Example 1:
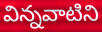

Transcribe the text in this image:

విన్నవాటిని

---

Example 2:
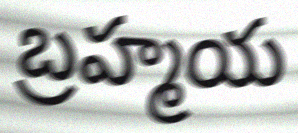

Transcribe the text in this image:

బ్రహ్మయ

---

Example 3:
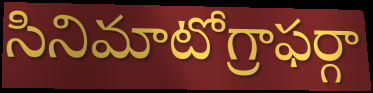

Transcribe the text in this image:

సినిమాటోగ్రాఫర్గా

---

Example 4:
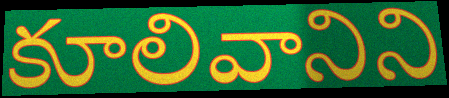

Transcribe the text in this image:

కూలివానిని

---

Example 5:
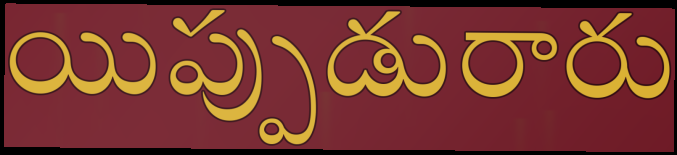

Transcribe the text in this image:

యిప్పుడురారు